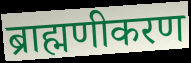
ब्राह्मणीकरण